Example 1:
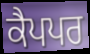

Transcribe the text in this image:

ਕੈਪਪਰ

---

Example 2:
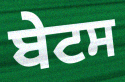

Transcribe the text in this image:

ਬੇਟਸ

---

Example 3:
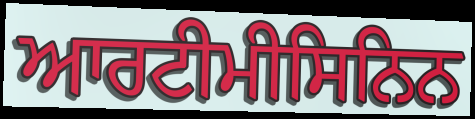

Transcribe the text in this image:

ਆਰਟੀਮੀਸਿਨਿਨ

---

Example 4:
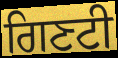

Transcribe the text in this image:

ਗਿਣਟੀ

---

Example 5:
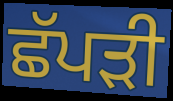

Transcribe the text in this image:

ਛੱਪੜੀ